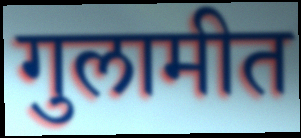
गुलामीत